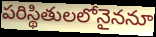
పరిస్థితులలోనైననూ